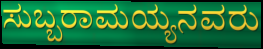
ಸುಬ್ಬರಾಮಯ್ಯನವರು